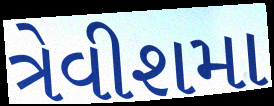
ત્રેવીશમા